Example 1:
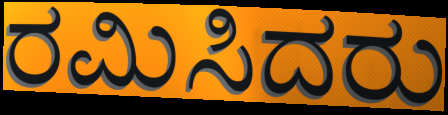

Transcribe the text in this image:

ರಮಿಸಿದರು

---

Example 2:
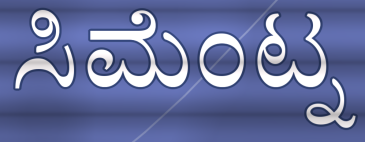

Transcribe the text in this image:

ಸಿಮೆಂಟ್ನ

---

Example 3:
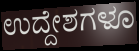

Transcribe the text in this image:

ಉದ್ದೇಶಗಳೂ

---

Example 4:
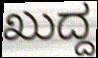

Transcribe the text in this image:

ಖುದ್ದ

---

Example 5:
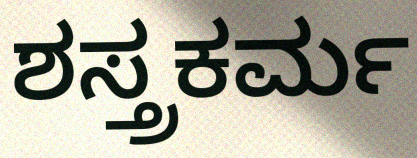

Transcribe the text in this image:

ಶಸ್ತ್ರಕರ್ಮ